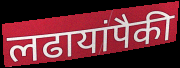
लढायांपैकी